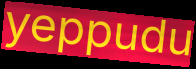
yeppudu